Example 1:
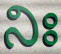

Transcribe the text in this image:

ನಿಃ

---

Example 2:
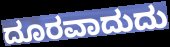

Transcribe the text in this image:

ದೂರವಾದುದು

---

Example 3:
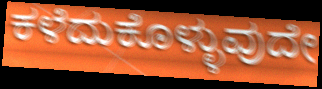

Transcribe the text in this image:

ಕಳೆದುಕೊಳ್ಳುವುದೇ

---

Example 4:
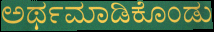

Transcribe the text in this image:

ಅರ್ಥಮಾಡಿಕೊಂಡು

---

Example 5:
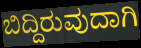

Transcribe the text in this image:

ಬಿದ್ದಿರುವುದಾಗಿ